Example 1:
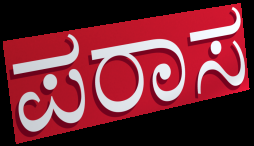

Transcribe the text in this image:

ಪರಾಸ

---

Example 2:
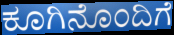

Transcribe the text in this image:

ಕೂಗಿನೊಂದಿಗೆ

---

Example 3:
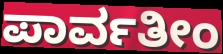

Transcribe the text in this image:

ಪಾರ್ವತೀಂ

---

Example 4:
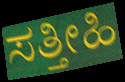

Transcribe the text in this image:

ಸತ್ತೀಹಿ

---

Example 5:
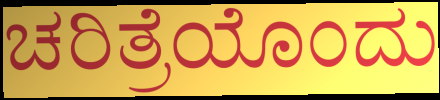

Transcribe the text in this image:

ಚರಿತ್ರೆಯೊಂದು